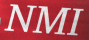
NMI